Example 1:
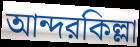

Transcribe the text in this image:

আন্দরকিল্লা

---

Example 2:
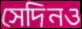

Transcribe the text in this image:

সেদিনও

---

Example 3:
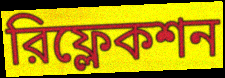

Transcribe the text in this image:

রিফ্লেকশন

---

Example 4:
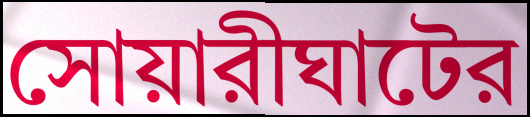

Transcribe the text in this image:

সোয়ারীঘাটের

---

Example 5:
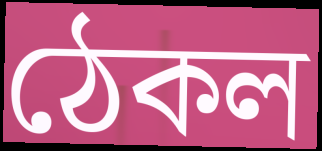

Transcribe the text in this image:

ঠেকল